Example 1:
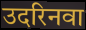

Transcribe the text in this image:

उदरिनवा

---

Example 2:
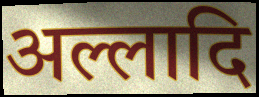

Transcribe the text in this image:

अल्लादि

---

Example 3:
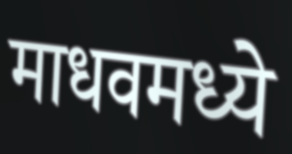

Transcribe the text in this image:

माधवमध्ये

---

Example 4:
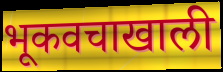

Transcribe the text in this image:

भूकवचाखाली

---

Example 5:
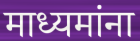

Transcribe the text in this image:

माध्यमांना